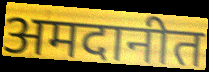
अमदानीत